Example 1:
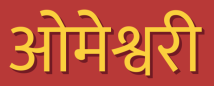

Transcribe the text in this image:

ओमेश्वरी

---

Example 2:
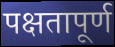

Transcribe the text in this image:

पक्षतापूर्ण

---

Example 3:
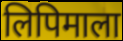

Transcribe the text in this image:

लिपिमाला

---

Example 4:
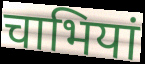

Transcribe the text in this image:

चाभियां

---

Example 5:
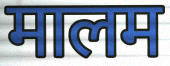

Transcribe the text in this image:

मालम